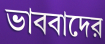
ভাববাদের